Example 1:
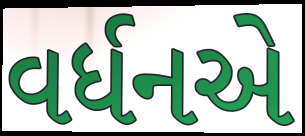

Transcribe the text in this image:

વર્ધનએ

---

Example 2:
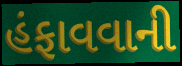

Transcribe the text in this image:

હંફાવવાની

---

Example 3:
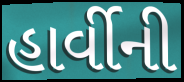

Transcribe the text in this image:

હાર્વીની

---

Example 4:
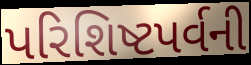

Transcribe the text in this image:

પરિશિષ્ટપર્વની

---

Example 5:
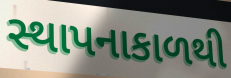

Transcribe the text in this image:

સ્થાપનાકાળથી